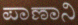
ಪಾಣಾನಿ